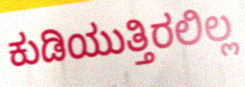
ಕುಡಿಯುತ್ತಿರಲಿಲ್ಲ